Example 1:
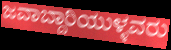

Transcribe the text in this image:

ಜವಾಬ್ದಾರಿಯುಳ್ಳವರು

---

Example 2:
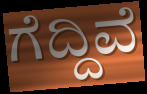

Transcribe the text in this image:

ಗೆದ್ದಿವೆ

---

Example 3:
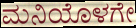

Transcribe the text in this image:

ಮನಿಯೊಳಗೇ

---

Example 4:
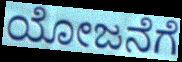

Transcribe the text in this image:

ಯೋಜನೆಗೆ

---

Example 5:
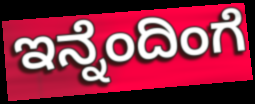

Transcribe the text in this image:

ಇನ್ನೆಂದಿಂಗೆ